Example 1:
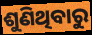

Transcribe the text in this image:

ଶୁଣିଥିବାରୁ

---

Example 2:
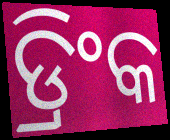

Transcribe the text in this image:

ଡ୍ରିଂକ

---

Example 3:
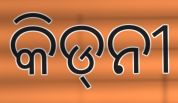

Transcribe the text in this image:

କିଡ୍‌ନୀ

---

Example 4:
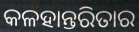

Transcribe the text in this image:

କଳହାନ୍ତରିତାର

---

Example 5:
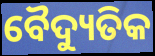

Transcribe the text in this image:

ବୈଦ୍ୟୁତିକ